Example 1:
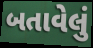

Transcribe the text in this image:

બતાવેલું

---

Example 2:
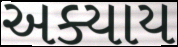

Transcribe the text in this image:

અક્યાય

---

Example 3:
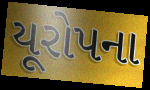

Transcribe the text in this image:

યૂરોપના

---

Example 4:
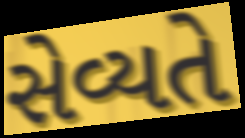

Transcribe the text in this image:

સેવ્યતે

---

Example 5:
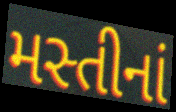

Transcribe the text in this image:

મસ્તીનાં